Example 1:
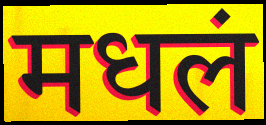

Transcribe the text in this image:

मधलं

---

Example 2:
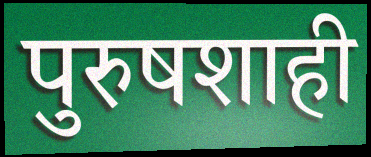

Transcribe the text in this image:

पुरुषशाही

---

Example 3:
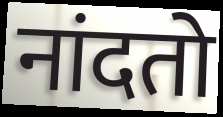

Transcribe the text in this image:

नांदतो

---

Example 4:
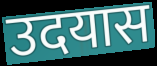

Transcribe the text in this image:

उदयास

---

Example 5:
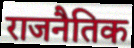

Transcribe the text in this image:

राजनैतिक